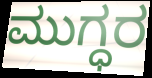
ಮುಗ್ಧರ